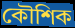
কৌশিক